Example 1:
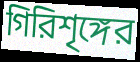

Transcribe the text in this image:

গিরিশৃঙ্গের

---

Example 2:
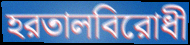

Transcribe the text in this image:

হরতালবিরোধী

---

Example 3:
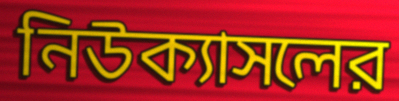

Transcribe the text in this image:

নিউক্যাসলের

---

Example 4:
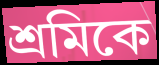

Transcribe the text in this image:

শ্রমিকে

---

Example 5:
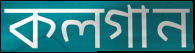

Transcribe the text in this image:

কলগান